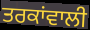
ਤਰਕਾਂਵਾਲੀ